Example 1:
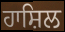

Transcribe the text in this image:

ਹਾਸ਼ਿਲ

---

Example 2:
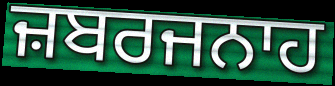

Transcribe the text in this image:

ਜ਼ਬਰਜਨਾਹ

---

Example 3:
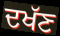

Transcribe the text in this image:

ਦਖੱਣ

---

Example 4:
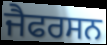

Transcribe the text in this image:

ਜੈਫਰਸਨ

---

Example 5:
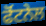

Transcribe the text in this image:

ਫੋਂਟਨੇਲ